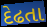
દેઢતા